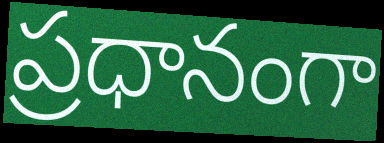
ప్రధానంగా